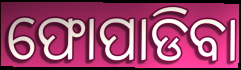
ଫୋପାଡିବା